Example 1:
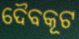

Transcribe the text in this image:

ଦୈବକୂଟ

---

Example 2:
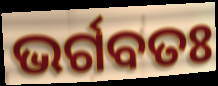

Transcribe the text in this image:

ଭର୍ଗବତଃ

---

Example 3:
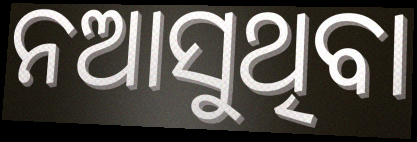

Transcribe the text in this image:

ନଆସୁଥିବା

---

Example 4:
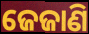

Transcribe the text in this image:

ଜେଜାଣି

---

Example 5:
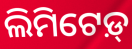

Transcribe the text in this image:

ଲିମିଟେଡ଼୍